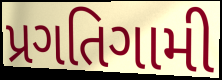
પ્રગતિગામી